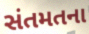
સંતમતના